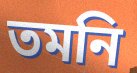
তমনি